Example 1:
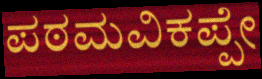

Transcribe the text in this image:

ಪಠಮವಿಕಪ್ಪೇ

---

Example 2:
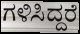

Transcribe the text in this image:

ಗಳಿಸಿದ್ದರೆ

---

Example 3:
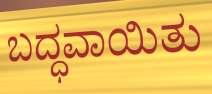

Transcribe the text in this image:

ಬದ್ಧವಾಯಿತು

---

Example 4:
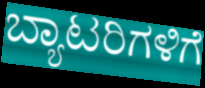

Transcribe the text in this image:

ಬ್ಯಾಟರಿಗಳಿಗೆ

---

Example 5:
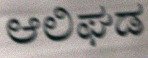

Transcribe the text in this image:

ಆಲಿಘಡ